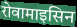
रोवामाइसिन